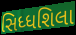
સિધ્ધશિલા